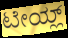
ಟೇಯ್ಲ್